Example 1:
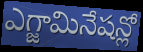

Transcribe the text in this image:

ఎగ్జామినేషన్లో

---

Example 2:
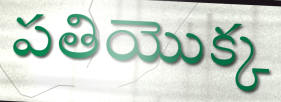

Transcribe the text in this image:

పతియొక్క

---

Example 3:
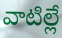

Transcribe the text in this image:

వాటిల్లే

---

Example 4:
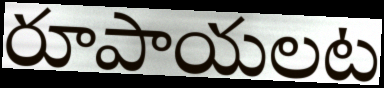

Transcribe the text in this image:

రూపాయలట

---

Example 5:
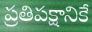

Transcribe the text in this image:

ప్రతిపక్షానికే